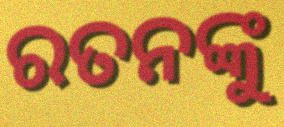
ରତନଙ୍କୁ